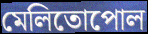
মেলিতোপোল